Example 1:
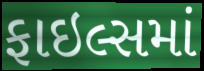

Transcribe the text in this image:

ફાઇલ્સમાં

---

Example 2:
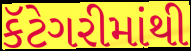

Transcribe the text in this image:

કૅટેગરીમાંથી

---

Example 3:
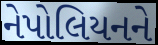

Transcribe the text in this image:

નેપોલિયનને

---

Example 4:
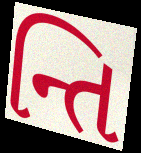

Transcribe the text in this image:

ન્તિ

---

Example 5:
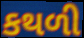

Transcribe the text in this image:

કથળી